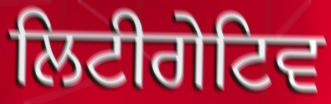
ਲਿਟੀਗੇਟਿਵ